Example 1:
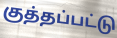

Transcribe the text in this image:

குத்தப்பட்டு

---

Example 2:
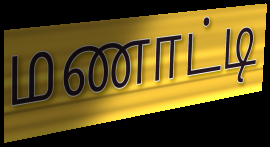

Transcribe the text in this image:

மணாட்டி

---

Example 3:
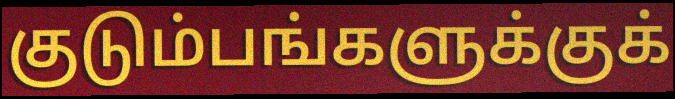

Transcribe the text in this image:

குடும்பங்களுக்குக்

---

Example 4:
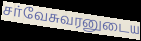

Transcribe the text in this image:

சர்வேசுவரனுடைய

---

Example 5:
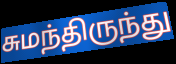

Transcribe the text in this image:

சுமந்திருந்து